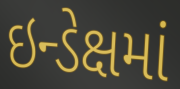
ઇન્ડેક્ષમાં